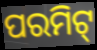
ପରମିଟ୍